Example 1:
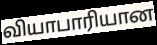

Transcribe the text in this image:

வியாபாரியான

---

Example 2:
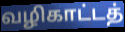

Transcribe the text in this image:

வழிகாட்டத்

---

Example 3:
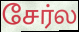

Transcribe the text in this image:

சேர்ல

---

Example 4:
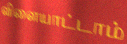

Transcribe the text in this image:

விளையாட்டாம்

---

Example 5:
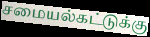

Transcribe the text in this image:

சமையல்கட்டுக்கு